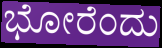
ಭೋರೆಂದು